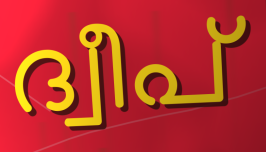
ദ്വീപ്